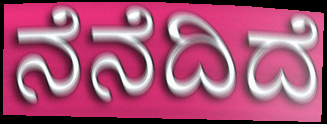
ನೆನೆದಿದೆ